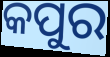
କପୁର